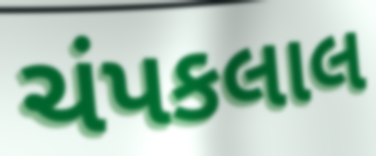
ચંપકલાલ